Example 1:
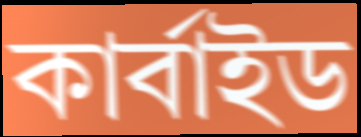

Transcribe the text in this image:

কার্বাইড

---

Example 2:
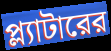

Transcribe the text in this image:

প্ল্যাটারের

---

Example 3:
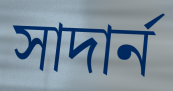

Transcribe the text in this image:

সাদার্ন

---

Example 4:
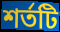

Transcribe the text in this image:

শর্তটি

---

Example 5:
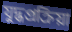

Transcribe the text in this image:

যুদ্ধপ্রক্রিয়া